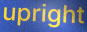
upright